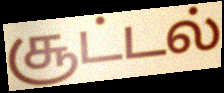
சூட்டல்